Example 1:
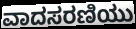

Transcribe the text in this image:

ವಾದಸರಣಿಯು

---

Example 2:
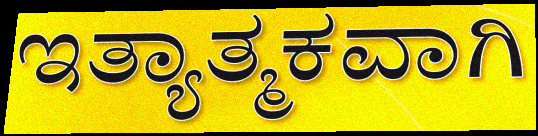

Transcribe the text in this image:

ಇತ್ಯಾತ್ಮಕವಾಗಿ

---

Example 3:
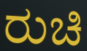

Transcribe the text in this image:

ರುಚಿ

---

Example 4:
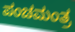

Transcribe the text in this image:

ಪಂಚಮಂತ್ರ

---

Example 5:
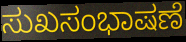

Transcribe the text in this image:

ಸುಖಸಂಭಾಷಣೆ